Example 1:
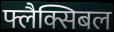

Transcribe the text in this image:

फ्लैक्सिबल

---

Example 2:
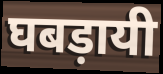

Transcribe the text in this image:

घबड़ायी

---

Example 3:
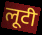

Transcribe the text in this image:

लूटी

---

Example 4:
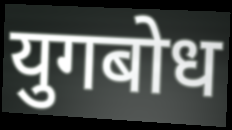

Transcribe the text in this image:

युगबोध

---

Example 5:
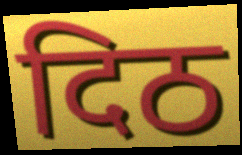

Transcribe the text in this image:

दिठ